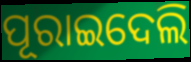
ପୂରାଇଦେଲି